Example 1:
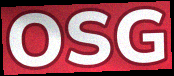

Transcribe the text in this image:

OSG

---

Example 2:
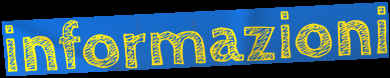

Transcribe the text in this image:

informazioni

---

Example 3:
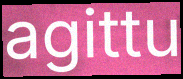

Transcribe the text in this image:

agittu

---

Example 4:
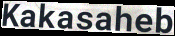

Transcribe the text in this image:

Kakasaheb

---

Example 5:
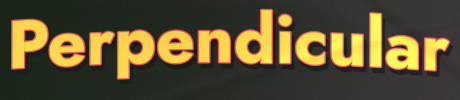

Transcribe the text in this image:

Perpendicular